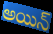
అయిన్